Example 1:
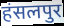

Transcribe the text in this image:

हंसलपुर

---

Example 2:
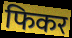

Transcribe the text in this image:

फिकर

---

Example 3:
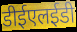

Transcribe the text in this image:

डीईएलईडी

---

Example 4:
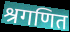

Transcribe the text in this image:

श्रगणित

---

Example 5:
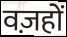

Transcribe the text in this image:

वज़हों